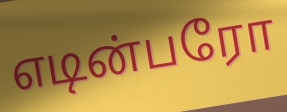
எடின்பரோ